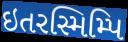
ઇતરસ્મિમ્પિ